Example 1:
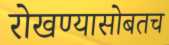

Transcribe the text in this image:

रोखण्यासोबतच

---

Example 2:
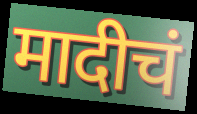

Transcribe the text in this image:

मादीचं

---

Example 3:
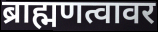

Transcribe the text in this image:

ब्राह्मणत्वावर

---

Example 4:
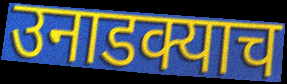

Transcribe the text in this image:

उनाडक्याच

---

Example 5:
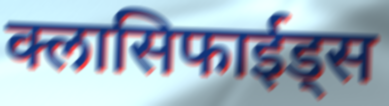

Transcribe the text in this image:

क्लासिफाईड्स